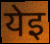
येइ